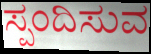
ಸ್ಪಂದಿಸುವ